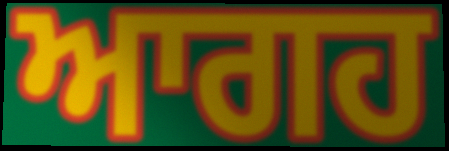
ਆਗਹ